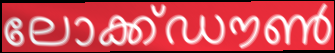
ലോക്ക്ഡൗൺ